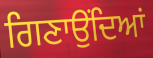
ਗਿਣਾਉਂਦਿਆਂ